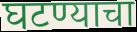
घटण्याचा